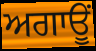
ਅਗਾਊੂਂ